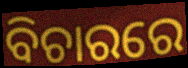
ବିଚାରରେ